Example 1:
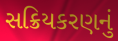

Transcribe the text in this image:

સક્રિયકરણનું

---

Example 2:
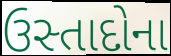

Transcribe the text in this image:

ઉસ્તાદોના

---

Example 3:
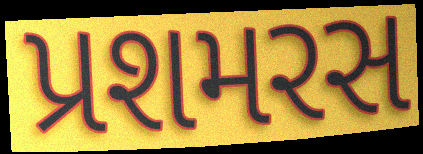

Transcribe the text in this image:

પ્રશમરસ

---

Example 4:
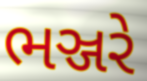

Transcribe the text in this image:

ભઞ્જરે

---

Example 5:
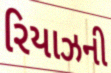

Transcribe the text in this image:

રિયાઝની